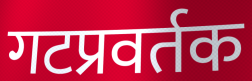
गटप्रवर्तक